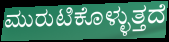
ಮುರುಟಿಕೊಳ್ಳುತ್ತದೆ